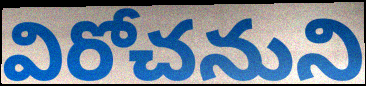
విరోచనుని